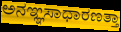
ಅನಞ್ಞಸಾಧಾರಣತ್ತಾ